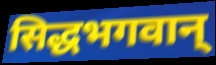
सिद्धभगवान्